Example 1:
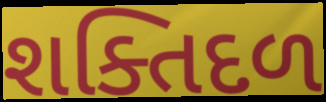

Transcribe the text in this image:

શક્તિદળ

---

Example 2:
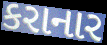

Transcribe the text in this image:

કરાનાર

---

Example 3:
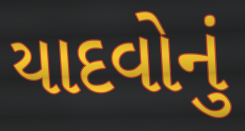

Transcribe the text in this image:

યાદવોનું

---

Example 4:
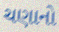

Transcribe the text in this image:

ચણાનો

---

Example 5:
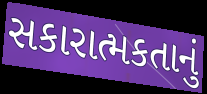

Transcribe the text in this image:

સકારાત્મકતાનું